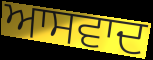
ਆਸਵਾਦ